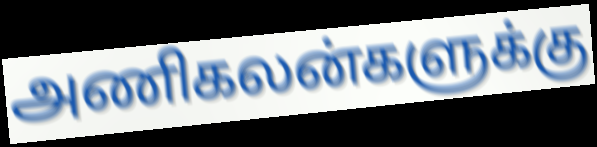
அணிகலன்களுக்கு